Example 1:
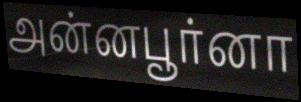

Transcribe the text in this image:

அன்னபூர்னா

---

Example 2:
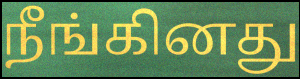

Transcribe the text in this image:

நீங்கினது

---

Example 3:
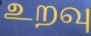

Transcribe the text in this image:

உறவு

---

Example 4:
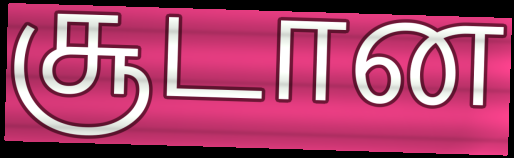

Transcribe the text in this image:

சூடான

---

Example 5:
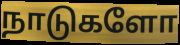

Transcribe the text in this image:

நாடுகளோ